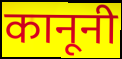
कानूनी